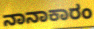
ನಾನಾಕಾರಂ